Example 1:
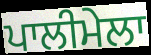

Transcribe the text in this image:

ਪਾਲੀਮੇਲਾ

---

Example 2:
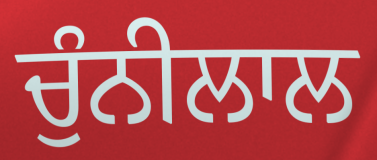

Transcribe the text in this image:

ਚੁੰਨੀਲਾਲ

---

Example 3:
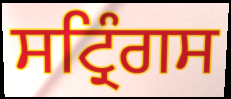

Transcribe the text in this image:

ਸਟ੍ਰਿੰਗਸ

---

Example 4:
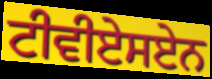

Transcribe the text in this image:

ਟੀਵੀਏਸਏਨ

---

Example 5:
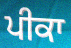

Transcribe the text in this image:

ਪੀਕਾ